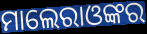
ମାଲେରାଓଙ୍କର